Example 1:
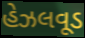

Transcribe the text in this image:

હેઝલવૂડ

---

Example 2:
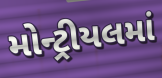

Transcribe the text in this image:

મોન્ટ્રીયલમાં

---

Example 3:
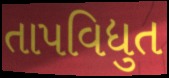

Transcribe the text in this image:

તાપવિદ્યુત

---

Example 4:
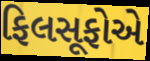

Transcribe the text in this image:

ફિલસૂફોએ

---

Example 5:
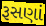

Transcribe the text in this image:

રૂસણાં